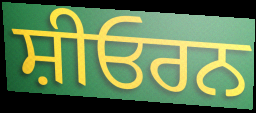
ਸ਼ੀਓਰਨ